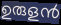
ഉരുളൻ